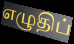
எழுதிப்